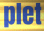
plet